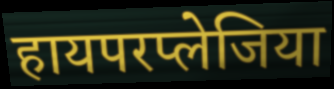
हायपरप्लेजिया